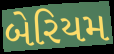
બેરિયમ